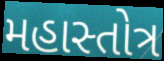
મહાસ્તોત્ર